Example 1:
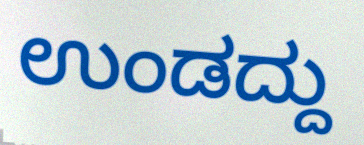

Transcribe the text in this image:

ಉಂಡದ್ದು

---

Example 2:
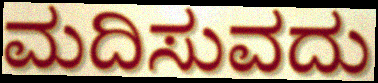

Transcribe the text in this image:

ಮದಿಸುವದು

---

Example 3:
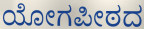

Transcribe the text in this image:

ಯೋಗಪೀಠದ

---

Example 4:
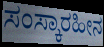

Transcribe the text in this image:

ಸಂಸ್ಕಾರಹೀನ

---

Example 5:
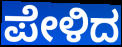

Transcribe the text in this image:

ಪೇಳಿದ